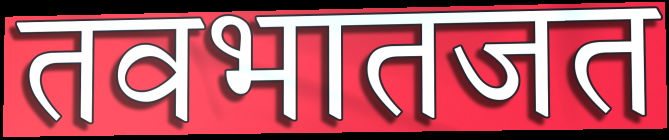
तवभातजत